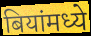
बियांमध्ये